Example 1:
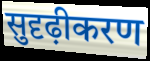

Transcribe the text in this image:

सुदृढ़ीकरण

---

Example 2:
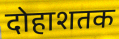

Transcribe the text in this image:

दोहाशतक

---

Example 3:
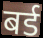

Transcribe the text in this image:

बर्ड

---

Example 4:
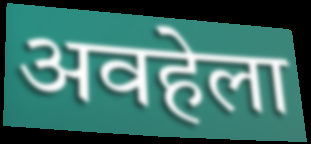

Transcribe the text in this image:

अवहेला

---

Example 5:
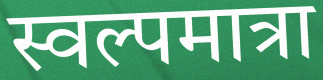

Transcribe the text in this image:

स्वल्पमात्रा